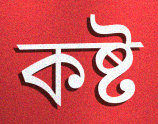
কষ্ট